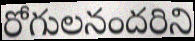
రోగులనందరిని